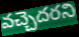
వచ్చెదరని